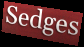
Sedges